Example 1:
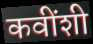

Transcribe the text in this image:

कवींशी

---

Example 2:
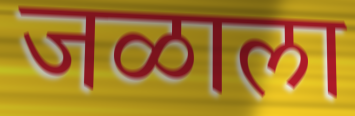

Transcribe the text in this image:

जळाला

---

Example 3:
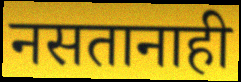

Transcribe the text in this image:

नसतानाही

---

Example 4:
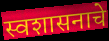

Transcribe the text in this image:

स्वशासनाचे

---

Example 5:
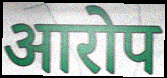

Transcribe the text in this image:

आरोप